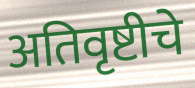
अतिवृष्टीचे